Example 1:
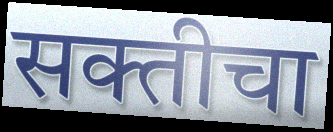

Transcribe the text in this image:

सक्तीचा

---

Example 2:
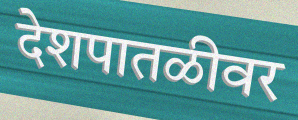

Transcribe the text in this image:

देशपातळीवर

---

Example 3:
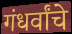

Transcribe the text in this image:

गंधर्वांचे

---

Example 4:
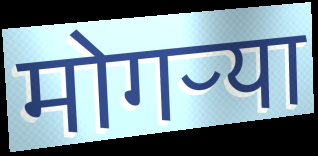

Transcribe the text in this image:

मोगऱ्या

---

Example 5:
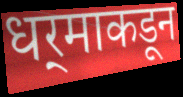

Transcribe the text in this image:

धर्माकडून